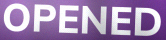
OPENED